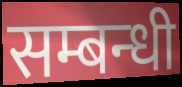
सम्‍बन्‍धी